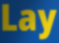
Lay